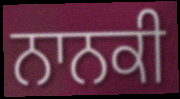
ਨਾਨਕੀ